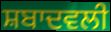
ਸ਼ਬਾਦਵਲੀ